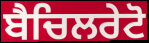
ਬੈਚਿਲਰੇਟੋ